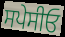
ਸਪੇਸੀਓ